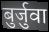
बुर्जुवा